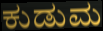
ಕುಡುಮ